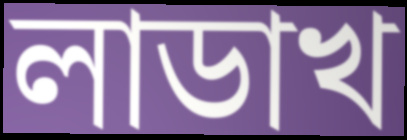
লাডাখ